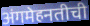
अंगमेहनतीची